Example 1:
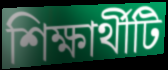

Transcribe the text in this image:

শিক্ষার্থীটি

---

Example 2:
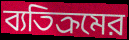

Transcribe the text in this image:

ব্যতিক্রমের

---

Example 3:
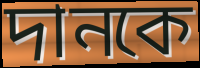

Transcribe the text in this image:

দানকে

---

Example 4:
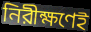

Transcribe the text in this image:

নিরীক্ষণেই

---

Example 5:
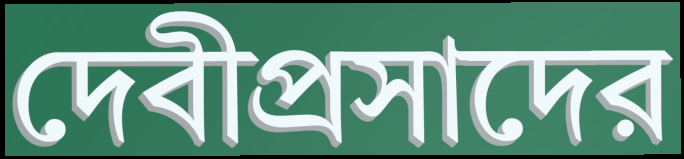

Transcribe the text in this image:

দেবীপ্রসাদের